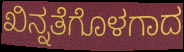
ಖಿನ್ನತೆಗೊಳಗಾದ